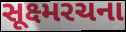
સૂક્ષ્મરચના